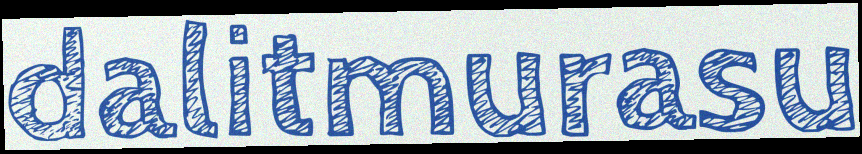
dalitmurasu